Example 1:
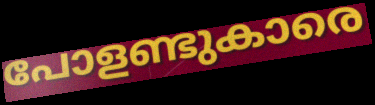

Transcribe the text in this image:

പോളണ്ടുകാരെ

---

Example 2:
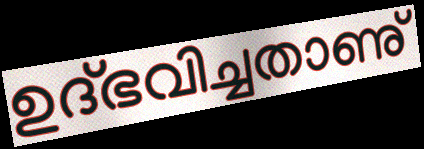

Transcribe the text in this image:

ഉദ്ഭവിച്ചതാണു്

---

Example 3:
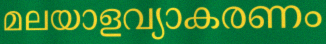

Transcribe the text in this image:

മലയാളവ്യാകരണം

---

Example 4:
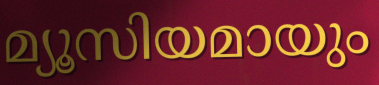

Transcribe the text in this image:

മ്യൂസിയമായും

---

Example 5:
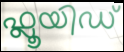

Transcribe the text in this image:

ഫ്ലൂയിഡ്